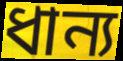
ধান্য